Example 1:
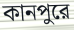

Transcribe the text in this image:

কানপুরে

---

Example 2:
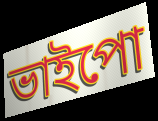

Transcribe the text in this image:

ভাইপো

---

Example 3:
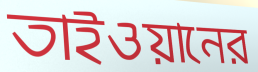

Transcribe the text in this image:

তাইওয়ানের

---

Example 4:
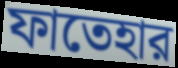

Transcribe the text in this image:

ফাতেহার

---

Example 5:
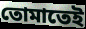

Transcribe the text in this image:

তোমাতেই